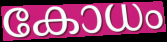
കോധം